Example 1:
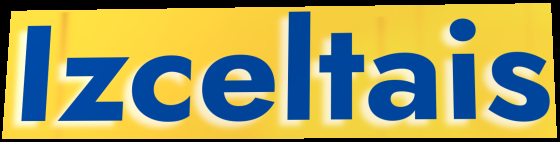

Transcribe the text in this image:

Izceltais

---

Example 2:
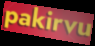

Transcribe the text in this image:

pakirvu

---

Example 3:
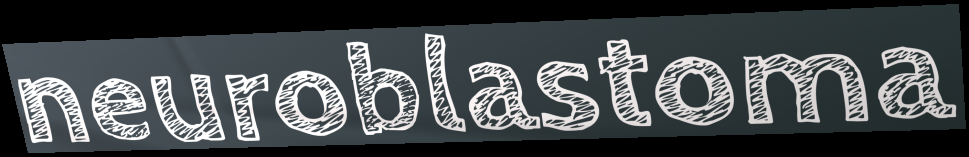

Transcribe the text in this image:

neuroblastoma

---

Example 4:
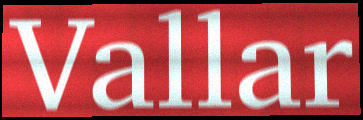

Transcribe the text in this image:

Vallar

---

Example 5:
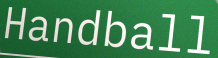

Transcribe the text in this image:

Handball